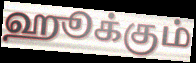
ஹூக்கும்